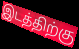
இடத்திற்கு